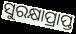
ସୁରକ୍ଷାପ୍ରାପ୍ତ